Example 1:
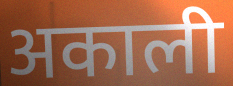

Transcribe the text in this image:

अकाली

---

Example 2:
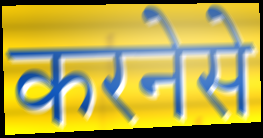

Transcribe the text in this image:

करनेसे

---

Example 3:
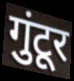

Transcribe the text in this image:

गुंटूर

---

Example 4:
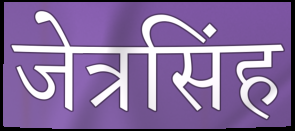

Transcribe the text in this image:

जेत्रसिंह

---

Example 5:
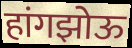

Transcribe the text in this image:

हांगझोऊ